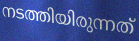
നടത്തിയിരുന്നത്